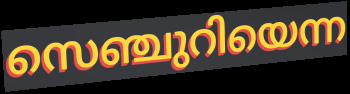
സെഞ്ചുറിയെന്ന